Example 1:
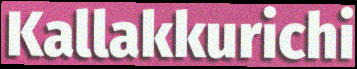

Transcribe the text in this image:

Kallakkurichi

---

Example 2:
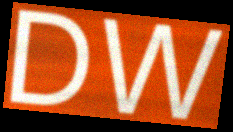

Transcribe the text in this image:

DW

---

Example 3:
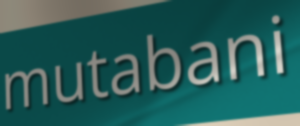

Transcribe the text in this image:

mutabani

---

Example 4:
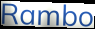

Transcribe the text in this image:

Rambo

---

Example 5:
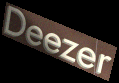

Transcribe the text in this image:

Deezer